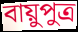
বায়ুপুত্র